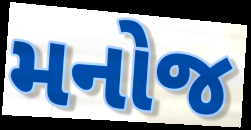
મનોજ